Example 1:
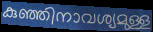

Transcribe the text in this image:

കുഞ്ഞിനാവശ്യമുള്ള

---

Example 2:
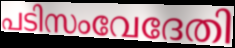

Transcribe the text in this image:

പടിസംവേദേതി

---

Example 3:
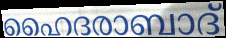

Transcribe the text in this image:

ഹൈദരാബാദ്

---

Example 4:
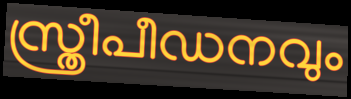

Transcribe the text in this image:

സ്ത്രീപീഡനവും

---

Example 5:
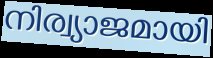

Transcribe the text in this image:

നിര്വ്യാജമായി